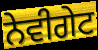
ਨੇਵੀਗੇਟ